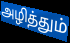
அழித்தும்